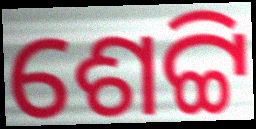
ଶେଟ୍ଟି